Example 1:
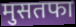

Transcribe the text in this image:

मुसतफा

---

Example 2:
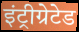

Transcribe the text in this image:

इंट्रीग्रेटेड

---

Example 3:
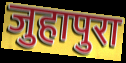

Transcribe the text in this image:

जुहापुरा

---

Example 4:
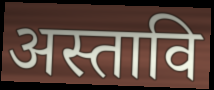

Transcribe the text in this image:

अस्तावि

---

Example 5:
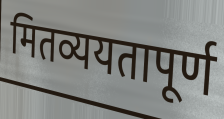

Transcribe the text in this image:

मितव्ययतापूर्ण